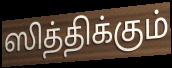
ஸித்திக்கும்